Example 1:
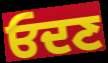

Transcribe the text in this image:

ਓਦਣ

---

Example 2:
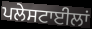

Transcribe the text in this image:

ਪਲੇਸਟਾਈਲਾਂ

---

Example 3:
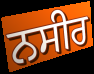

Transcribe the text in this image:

ਨਸੀਰ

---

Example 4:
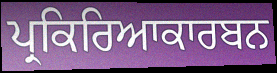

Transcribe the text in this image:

ਪ੍ਰਕਿਰਿਆਕਾਰਬਨ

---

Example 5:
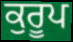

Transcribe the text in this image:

ਕੁਰੂਪ